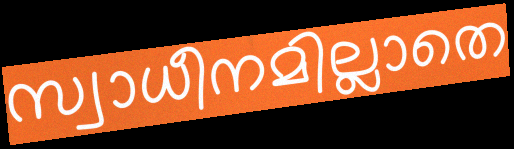
സ്വാധീനമില്ലാതെ